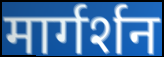
मार्गर्शन